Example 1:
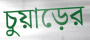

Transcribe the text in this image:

চুয়াড়ের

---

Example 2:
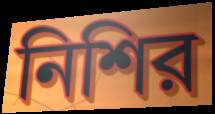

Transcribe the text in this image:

নিশির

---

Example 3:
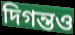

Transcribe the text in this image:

দিগন্তও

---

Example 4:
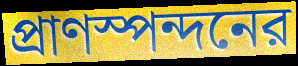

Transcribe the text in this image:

প্রাণস্পন্দনের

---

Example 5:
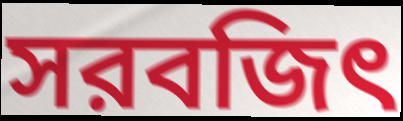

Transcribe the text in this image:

সরবজিৎ